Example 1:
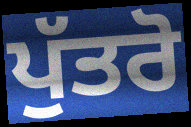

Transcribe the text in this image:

ਪੁੱਤਰੋ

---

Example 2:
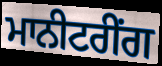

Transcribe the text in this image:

ਮਾਨੀਟਰੀਂਗ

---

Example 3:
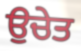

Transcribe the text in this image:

ਉਚੇਤ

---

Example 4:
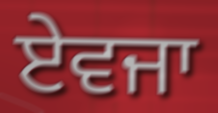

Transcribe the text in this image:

ਏਵਜਾ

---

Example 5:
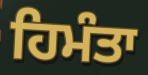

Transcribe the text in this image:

ਹਿਮੰਤਾ